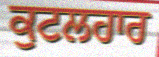
ਕੁਟਲਹਾਰ